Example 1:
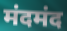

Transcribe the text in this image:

मंदमंद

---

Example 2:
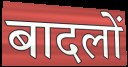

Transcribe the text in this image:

बादलों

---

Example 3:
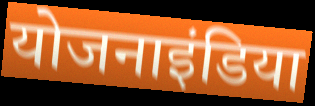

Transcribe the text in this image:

योजनाइंडिया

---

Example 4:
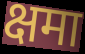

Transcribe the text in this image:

क्षमा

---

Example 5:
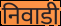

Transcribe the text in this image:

निवाडी